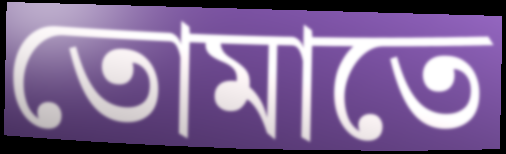
তোমাতে